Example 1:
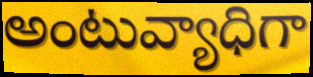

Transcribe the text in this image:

అంటువ్యాధిగా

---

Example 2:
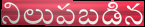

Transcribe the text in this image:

నిలుపబడిన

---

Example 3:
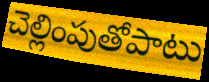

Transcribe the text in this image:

చెల్లింపుతోపాటు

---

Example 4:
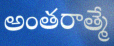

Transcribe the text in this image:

అంతరాత్మే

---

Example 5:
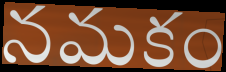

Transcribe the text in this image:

నమకం